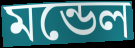
মন্ডেল